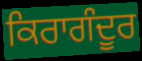
ਕਿਰਾਗੰਦੂਰ